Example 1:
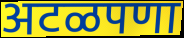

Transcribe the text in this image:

अटळपणा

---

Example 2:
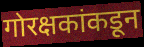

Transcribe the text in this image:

गोरक्षकांकडून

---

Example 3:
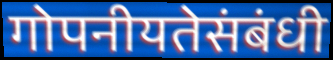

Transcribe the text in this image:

गोपनीयतेसंबंधी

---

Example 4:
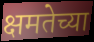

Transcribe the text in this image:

क्षमतेच्या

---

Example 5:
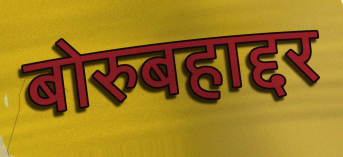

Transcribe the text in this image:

बोरुबहाद्दर